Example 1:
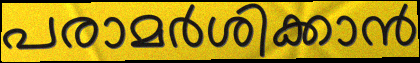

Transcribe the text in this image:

പരാമർശിക്കാൻ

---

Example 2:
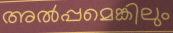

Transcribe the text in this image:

അൽപ്പമെങ്കിലും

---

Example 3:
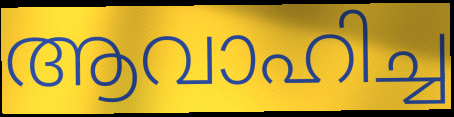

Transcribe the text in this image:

ആവാഹിച്ച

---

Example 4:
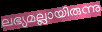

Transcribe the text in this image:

ലഭ്യമല്ലായിരുന്നു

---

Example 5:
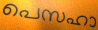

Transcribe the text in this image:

പെസഹാ